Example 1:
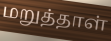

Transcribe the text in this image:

மறுத்தாள்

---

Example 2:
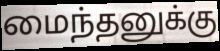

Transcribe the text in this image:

மைந்தனுக்கு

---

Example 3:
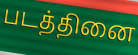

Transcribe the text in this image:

படத்தினை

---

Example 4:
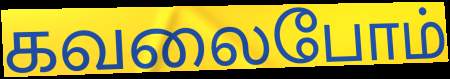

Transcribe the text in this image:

கவலைபோம்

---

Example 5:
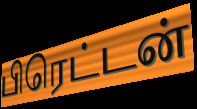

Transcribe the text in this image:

பிரெட்டன்